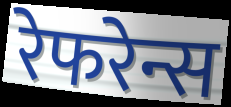
रेफरेन्स